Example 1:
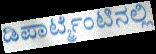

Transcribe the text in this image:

ಡಿಪಾರ್ಟ್ಮೆಂಟಿನಲ್ಲಿ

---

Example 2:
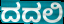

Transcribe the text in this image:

ದದಲಿ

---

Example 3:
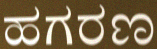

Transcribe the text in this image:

ಹಗರಣ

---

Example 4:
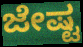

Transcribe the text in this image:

ಜೇಷ್ಟ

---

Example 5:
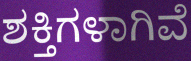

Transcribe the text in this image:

ಶಕ್ತಿಗಳಾಗಿವೆ